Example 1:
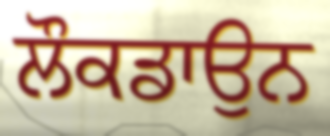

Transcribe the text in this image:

ਲੌਕਡਾਉਨ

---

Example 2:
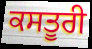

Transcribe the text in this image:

ਕਸਤੂਰੀ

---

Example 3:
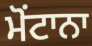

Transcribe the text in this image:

ਮੋਂਟਾਨਾ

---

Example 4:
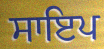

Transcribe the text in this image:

ਸਾਇਪ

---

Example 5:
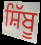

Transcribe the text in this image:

ਸ਼ਿੱਬੂ